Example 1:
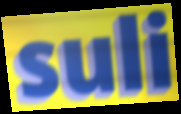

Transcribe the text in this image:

suli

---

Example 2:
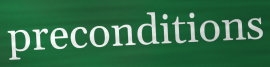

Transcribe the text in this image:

preconditions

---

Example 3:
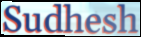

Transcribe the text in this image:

Sudhesh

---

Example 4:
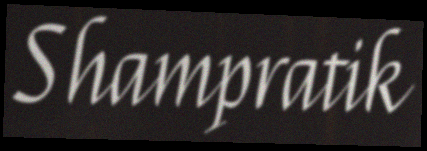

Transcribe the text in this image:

Shampratik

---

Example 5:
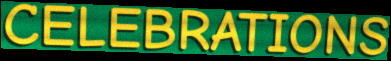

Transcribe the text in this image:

CELEBRATIONS